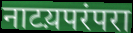
नाटय़परंपरा